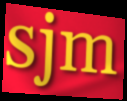
sjm